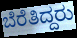
ಬೆರೆತಿದ್ದರು